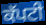
ਕੱਪਟੀ